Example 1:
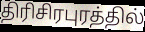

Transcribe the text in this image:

திரிசிரபுரத்தில்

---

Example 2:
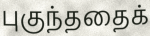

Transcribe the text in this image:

புகுந்ததைக்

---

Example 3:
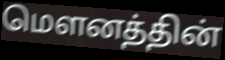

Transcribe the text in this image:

மௌனத்தின்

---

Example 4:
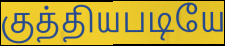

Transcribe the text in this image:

குத்தியபடியே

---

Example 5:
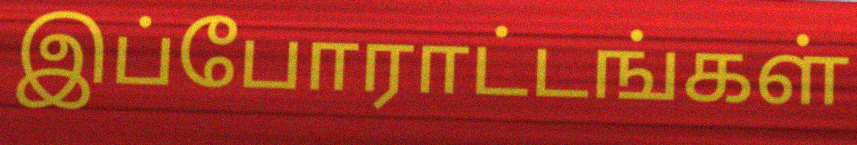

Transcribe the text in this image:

இப்போராட்டங்கள்